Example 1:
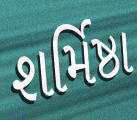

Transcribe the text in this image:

શર્મિષ્ઠા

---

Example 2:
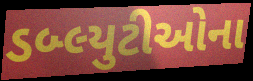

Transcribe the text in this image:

ડબ્લ્યુટીઓના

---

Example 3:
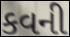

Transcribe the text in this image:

કવની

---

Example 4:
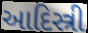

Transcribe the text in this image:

આદિસ્ત્રી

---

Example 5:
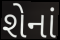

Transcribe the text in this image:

શેનાં